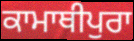
ਕਾਮਾਥੀਪੁਰਾ